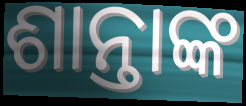
ଶାନ୍ତାଙ୍କ